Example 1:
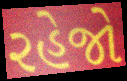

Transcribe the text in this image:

રહેજો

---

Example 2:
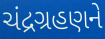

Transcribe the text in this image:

ચંદ્રગ્રહણને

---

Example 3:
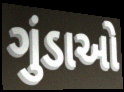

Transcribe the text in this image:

ગુંડાઓ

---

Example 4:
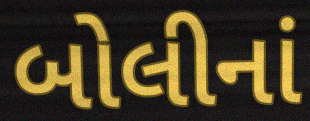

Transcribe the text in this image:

બોલીનાં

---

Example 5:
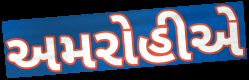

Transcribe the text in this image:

અમરોહીએ